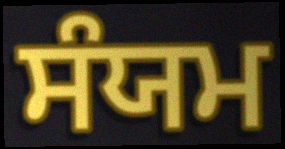
ਸੰਯਮ